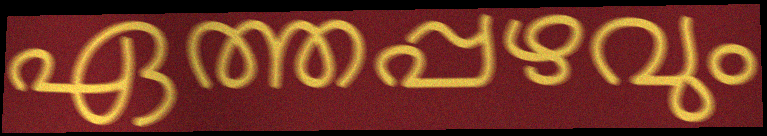
ഏത്തപ്പഴവും